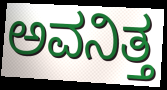
ಅವನಿತ್ತ